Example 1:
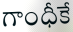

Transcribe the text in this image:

గాంధీకే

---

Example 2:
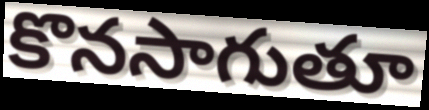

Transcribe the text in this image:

కొనసాగుతూ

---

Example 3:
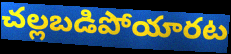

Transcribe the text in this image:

చల్లబడిపోయారట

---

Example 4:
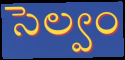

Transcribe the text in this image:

సెల్వం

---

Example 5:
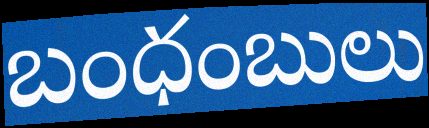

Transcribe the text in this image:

బంధంబులు